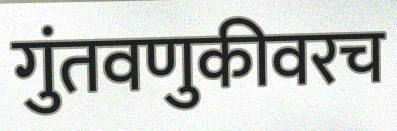
गुंतवणुकीवरच